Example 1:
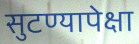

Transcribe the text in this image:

सुटण्यापेक्षा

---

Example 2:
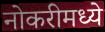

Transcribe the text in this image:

नोकरीमध्ये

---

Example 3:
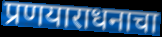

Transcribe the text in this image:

प्रणयाराधनाचा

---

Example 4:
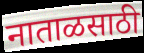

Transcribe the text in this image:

नाताळसाठी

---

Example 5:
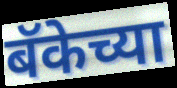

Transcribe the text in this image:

बॅकेच्या